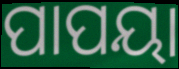
ପାପୟା